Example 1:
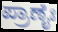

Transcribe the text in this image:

ಪ್ರಾಣೈಃ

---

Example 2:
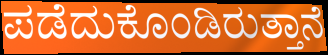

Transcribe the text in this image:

ಪಡೆದುಕೊಂಡಿರುತ್ತಾನೆ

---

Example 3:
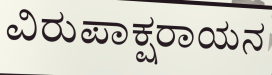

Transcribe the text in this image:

ವಿರುಪಾಕ್ಷರಾಯನ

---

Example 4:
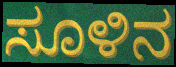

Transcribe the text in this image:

ಸೂಳಿನ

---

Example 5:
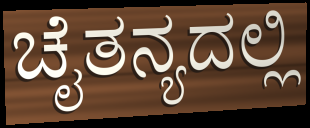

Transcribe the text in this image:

ಚೈತನ್ಯದಲ್ಲಿ